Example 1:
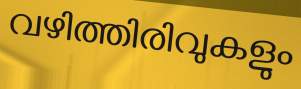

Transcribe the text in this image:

വഴിത്തിരിവുകളും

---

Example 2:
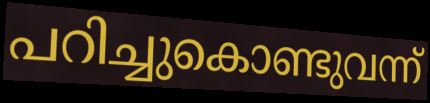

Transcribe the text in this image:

പറിച്ചുകൊണ്ടുവന്ന്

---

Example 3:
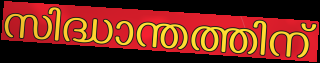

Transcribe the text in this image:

സിദ്ധാന്തത്തിന്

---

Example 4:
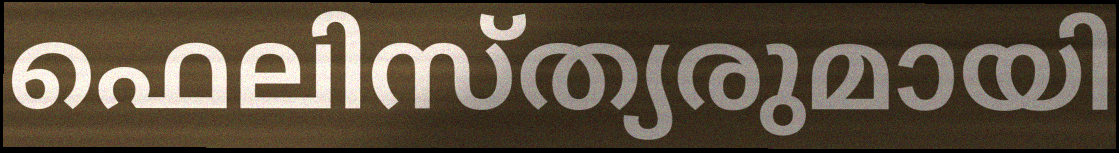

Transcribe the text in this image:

ഫെലിസ്ത്യരുമായി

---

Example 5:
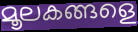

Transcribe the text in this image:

മൂലകങ്ങളെ